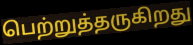
பெற்றுத்தருகிறது